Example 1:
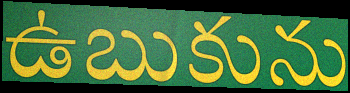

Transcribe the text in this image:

ఉబుకును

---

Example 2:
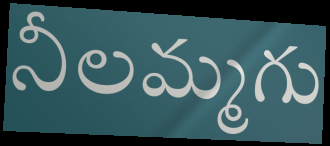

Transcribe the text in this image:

నీలమ్మగు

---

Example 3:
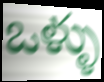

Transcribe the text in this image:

ఒళ్ళు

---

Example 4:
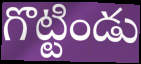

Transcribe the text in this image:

గొట్టిండు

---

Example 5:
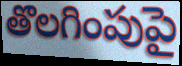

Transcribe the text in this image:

తొలగింపుపై